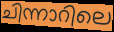
ചിന്നാറിലെ